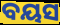
ବୟସ